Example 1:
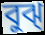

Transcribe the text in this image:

বুঝ্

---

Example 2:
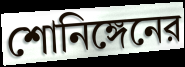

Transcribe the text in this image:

শোনিঙ্গেনের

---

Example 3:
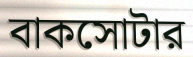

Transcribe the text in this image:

বাকসোটার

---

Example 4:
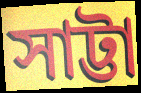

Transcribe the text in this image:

সাট্টা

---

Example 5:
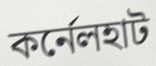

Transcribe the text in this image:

কর্নেলহাট